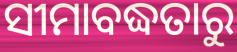
ସୀମାବଦ୍ଧତାରୁ